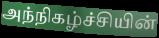
அந்நிகழ்ச்சியின்